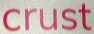
crust